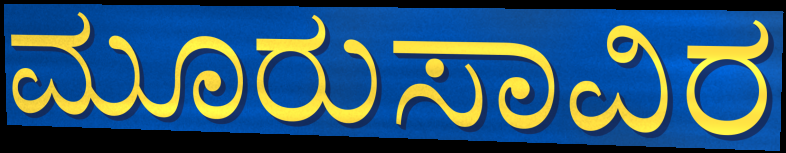
ಮೂರುಸಾವಿರ